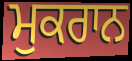
ਮੁਕਰਾਨ